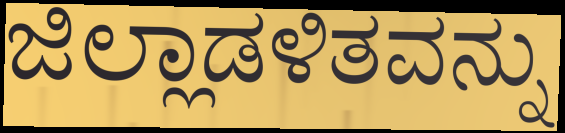
ಜಿಲ್ಲಾಡಳಿತವನ್ನು